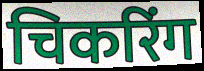
चिकरिंग